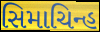
સિમાચિન્હ